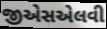
જીએસએલવી